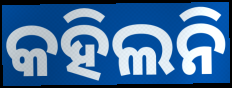
କହିଲନି